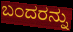
ಬಂದರನ್ನು